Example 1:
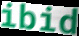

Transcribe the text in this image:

ibid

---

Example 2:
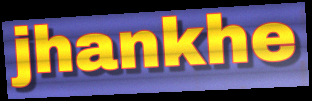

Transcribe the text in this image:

jhankhe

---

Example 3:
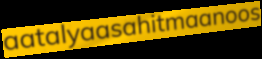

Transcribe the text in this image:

aatalyaasahitmaanoos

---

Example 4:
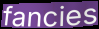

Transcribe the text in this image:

fancies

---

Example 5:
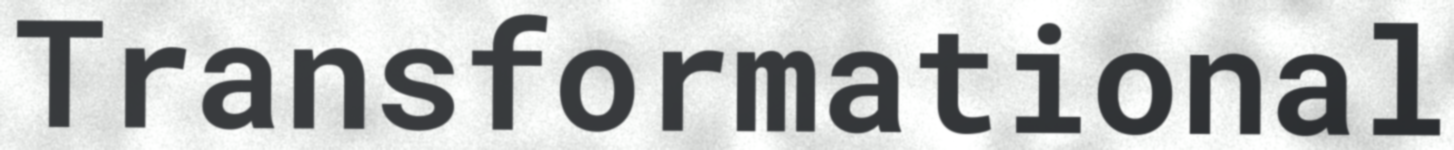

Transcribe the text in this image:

Transformational